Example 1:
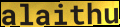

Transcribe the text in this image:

alaithu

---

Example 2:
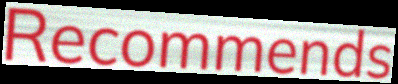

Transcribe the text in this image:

Recommends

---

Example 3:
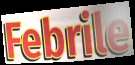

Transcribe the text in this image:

Febrile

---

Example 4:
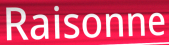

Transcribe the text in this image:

Raisonne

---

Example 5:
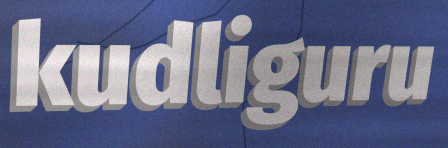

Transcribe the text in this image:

kudliguru